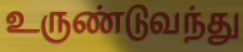
உருண்டுவந்து